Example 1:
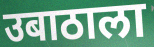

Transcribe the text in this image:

उबाठाला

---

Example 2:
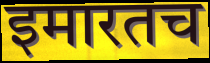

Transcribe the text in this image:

इमारतच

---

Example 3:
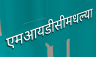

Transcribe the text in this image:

एमआयडीसीमधल्या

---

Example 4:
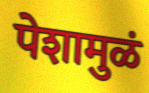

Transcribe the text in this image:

पेशामुळं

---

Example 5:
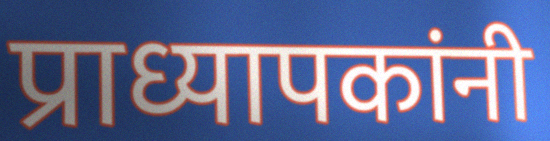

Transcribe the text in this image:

प्राध्यापकांनी